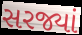
સરજ્યાં